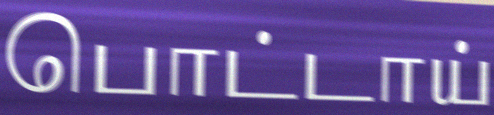
பொட்டாய்